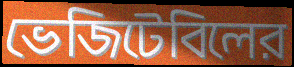
ভেজিটেবিলের